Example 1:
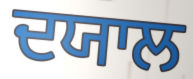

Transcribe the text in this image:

ਦਯਾਲ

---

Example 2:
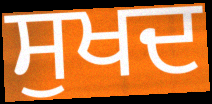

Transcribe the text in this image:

ਸੁਖਦ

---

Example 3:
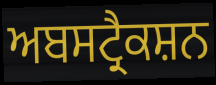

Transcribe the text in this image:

ਅਬਸਟ੍ਰੈਕਸ਼ਨ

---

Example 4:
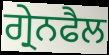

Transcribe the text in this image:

ਗ੍ਰੇਨਫੈਲ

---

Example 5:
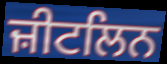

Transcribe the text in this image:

ਜ਼ੀਟਲਿਨ